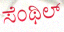
ಸೆಂಥಿಲ್